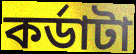
কর্ডাটা